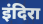
इंदिरा